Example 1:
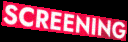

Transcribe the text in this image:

SCREENING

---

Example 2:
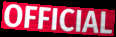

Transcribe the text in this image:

OFFICIAL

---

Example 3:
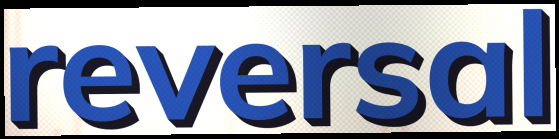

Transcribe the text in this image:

reversal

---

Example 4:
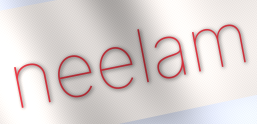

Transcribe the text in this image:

neelam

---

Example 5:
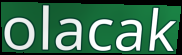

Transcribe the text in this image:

olacak